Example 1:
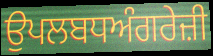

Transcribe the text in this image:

ਉਪਲਬਧਅੰਗਰੇਜ਼ੀ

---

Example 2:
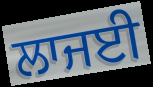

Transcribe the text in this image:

ਲਾਜਈ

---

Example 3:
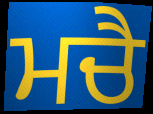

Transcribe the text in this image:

ਮਚੈ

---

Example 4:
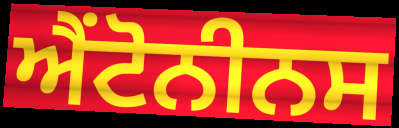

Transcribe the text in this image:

ਐਂਟੋਨੀਨਸ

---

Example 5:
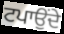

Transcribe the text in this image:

ਟਪਾਉਂਦੇ